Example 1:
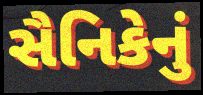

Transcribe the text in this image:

સૈનિકેનું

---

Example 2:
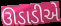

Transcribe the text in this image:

ઊડાડીએ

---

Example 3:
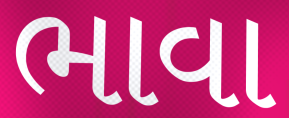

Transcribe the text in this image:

ભાવા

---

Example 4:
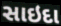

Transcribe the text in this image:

સાઇદા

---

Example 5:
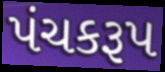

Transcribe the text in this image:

પંચકરૂપ